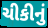
ચીકીનું